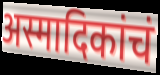
अस्मादिकांचं